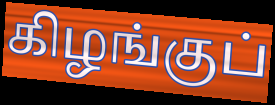
கிழங்குப்